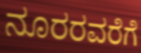
ನೂರರವರೆಗೆ